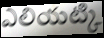
ఎలియట్కి